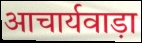
आचार्यवाड़ा